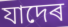
যাদেৰ